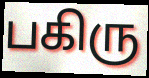
பகிரு